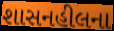
શાસનહીલના